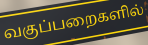
வகுப்பறைகளில்